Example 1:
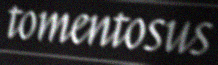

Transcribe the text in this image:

tomentosus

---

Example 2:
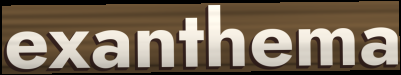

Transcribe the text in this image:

exanthema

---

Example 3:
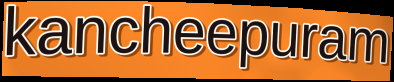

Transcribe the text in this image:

kancheepuram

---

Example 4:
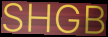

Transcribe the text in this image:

SHGB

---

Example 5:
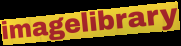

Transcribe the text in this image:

imagelibrary